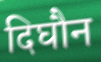
दिघौन